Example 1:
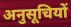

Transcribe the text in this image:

अनुसूचियों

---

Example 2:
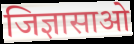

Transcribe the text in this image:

जिज्ञासाओ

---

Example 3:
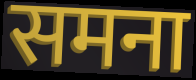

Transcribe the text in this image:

समना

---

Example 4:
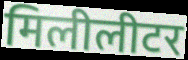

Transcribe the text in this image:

मिलीलीटर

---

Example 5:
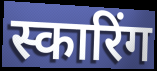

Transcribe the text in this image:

स्कारिंग